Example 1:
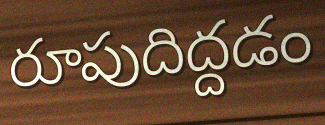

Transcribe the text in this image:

రూపుదిద్దడం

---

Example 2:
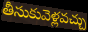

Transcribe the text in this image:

తీసుకువెళ్లవచ్చు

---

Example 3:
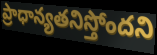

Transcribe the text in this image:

ప్రాధాన్యతనిస్తోందని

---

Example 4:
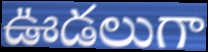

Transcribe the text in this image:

ఊడలుగా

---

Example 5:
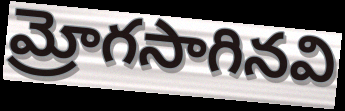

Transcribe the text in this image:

మ్రోగసాగినవి